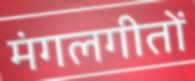
मंगलगीतों